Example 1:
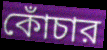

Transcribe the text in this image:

কোঁচার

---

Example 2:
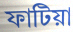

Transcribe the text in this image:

ফাটিয়া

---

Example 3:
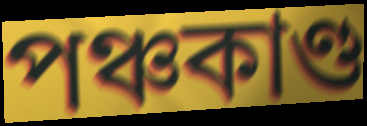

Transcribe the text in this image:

পঞ্চকাণ্ড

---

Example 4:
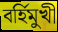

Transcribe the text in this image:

বর্হিমুখী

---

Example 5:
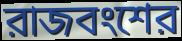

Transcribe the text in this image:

রাজবংশের